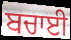
ਬਚਾਈ